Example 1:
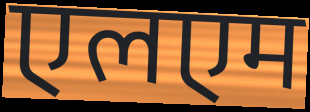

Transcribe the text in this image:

एलएम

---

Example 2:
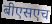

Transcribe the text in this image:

बीएसएच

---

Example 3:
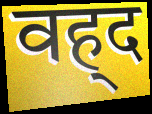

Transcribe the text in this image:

वह्द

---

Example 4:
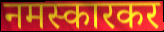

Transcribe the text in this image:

नमस्कारकर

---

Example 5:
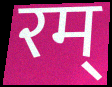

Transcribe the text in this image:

रम्